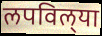
लपविल्या